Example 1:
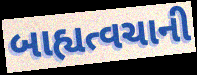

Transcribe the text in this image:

બાહ્યત્વચાની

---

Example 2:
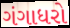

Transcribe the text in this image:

ગંગાધરો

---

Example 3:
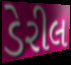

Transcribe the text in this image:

ડેરીલ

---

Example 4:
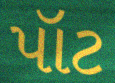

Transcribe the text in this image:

પૉટ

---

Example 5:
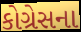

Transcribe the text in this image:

કોગ્રેસના